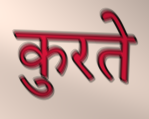
कुरते